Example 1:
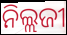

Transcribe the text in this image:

ନିଲ୍ଲଜୀ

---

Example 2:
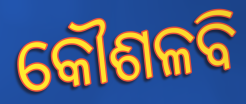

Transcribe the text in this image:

କୌଶଳବି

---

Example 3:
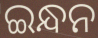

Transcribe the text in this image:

ଇନ୍ଧନ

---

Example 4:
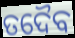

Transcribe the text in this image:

ତଦୈବ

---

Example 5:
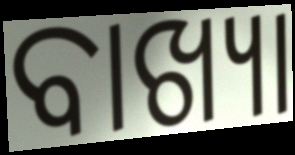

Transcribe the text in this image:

ବାଖ୍ୟା